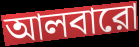
আলবারো